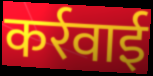
कर्रवाई